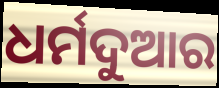
ଧର୍ମଦୁଆର